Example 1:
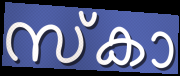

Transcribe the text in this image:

സ്കാ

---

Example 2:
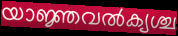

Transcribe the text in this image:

യാജ്ഞവൽക്യശ്ച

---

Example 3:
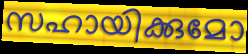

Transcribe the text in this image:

സഹായിക്കുമോ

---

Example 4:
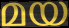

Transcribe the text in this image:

മയ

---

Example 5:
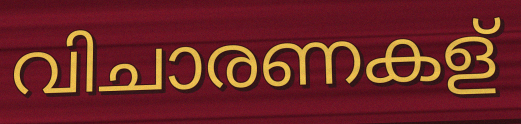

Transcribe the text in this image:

വിചാരണകള്